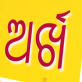
ଅର୍ଖ